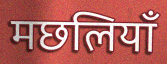
मछलियाँ